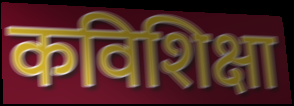
कविशिक्षा